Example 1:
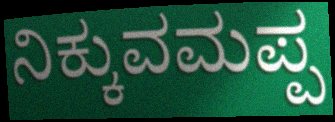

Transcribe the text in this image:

ನಿಕ್ಕುವಮಪ್ಪ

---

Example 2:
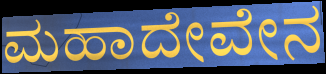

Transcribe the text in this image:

ಮಹಾದೇವೇನ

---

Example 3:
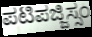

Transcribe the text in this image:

ಪಟಿಪಜ್ಜಿಸ್ಸಂ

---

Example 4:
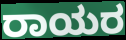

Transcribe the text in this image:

ರಾಯರ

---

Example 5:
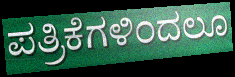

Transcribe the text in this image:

ಪತ್ರಿಕೆಗಳಿಂದಲೂ